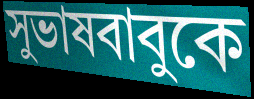
সুভাষবাবুকে